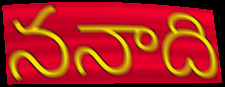
ననాది